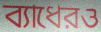
ব্যাধেরও